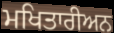
ਮਖਿਤਾਰੀਅਨ